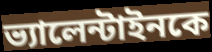
ভ্যালেন্টাইনকে